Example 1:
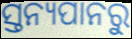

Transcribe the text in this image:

ସ୍ତନ୍ୟପାନରୁ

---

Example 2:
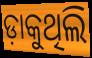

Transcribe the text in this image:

ଡ଼ାକୁଥିଲି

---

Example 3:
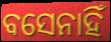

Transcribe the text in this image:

ବସେନାହିଁ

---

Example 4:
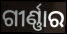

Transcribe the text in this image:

ଗୀର୍ଣ୍ଣାର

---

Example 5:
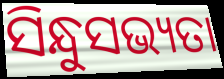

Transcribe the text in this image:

ସିନ୍ଧୁସଭ୍ୟତା